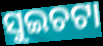
ସୁଇଚଟା